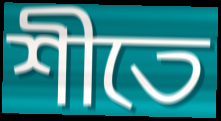
শীতে